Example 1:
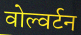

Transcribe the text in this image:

वोल्वर्टन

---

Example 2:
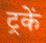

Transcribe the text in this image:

ट्रकें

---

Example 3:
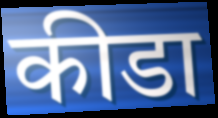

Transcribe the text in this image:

कीडा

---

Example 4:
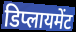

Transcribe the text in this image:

डिप्लायमेंट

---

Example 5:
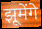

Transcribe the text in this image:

झूमेंगे